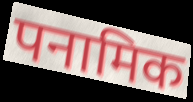
पनामिक